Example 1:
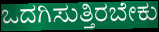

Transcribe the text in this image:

ಒದಗಿಸುತ್ತಿರಬೇಕು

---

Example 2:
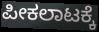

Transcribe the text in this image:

ಪೀಕಲಾಟಕ್ಕೆ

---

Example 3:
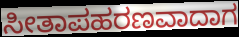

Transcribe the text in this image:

ಸೀತಾಪಹರಣವಾದಾಗ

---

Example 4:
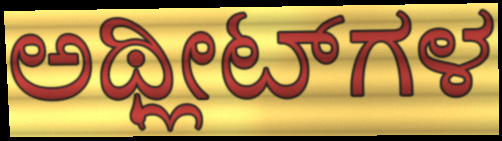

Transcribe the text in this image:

ಅಥ್ಲೀಟ್‌ಗಳ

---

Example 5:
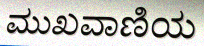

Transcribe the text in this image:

ಮುಖವಾಣಿಯ